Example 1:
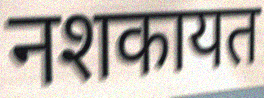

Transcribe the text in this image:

नशकायत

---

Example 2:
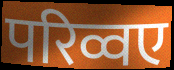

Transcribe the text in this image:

परिव्वए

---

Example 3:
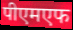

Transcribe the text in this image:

पीएमएफ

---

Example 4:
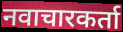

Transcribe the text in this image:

नवाचारकर्ता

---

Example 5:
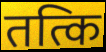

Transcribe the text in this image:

तत्कि